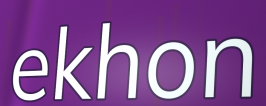
ekhon